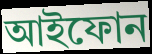
আইফোন